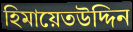
হিমায়েতউদ্দিন